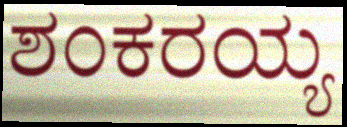
ಶಂಕರಯ್ಯ